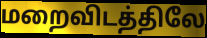
மறைவிடத்திலே